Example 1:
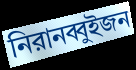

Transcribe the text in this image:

নিরানব্বুইজন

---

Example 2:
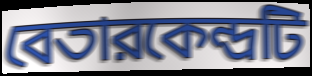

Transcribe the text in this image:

বেতারকেন্দ্রটি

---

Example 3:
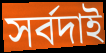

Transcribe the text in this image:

সর্বদাই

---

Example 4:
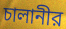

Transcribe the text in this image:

চালানীর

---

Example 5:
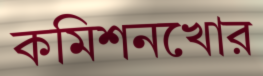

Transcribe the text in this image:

কমিশনখোর